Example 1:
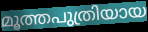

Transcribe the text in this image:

മൂത്തപുത്രിയായ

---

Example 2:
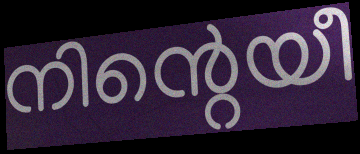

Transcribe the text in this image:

നിന്റെയീ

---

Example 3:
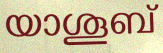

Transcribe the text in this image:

യാശൂബ്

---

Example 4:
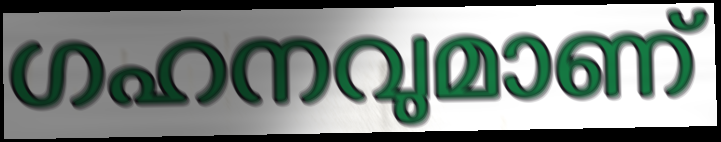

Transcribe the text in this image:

ഗഹനവുമാണ്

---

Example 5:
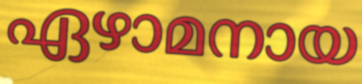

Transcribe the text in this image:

ഏഴാമനായ